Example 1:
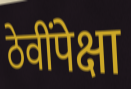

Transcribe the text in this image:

ठेवींपेक्षा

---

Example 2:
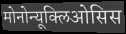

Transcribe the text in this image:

मोनोन्यूक्लिओसिस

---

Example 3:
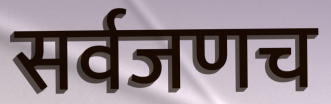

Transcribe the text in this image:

सर्वजणच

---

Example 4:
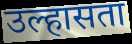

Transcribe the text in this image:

उल्हासता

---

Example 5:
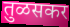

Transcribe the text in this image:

तुळसकर